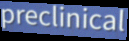
preclinical